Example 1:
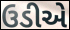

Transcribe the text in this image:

ઉડીએ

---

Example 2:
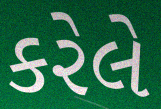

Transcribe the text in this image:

કરેલે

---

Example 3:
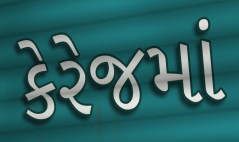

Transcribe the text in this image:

કેરેજમાં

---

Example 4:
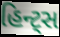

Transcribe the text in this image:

હિન્ટ્સ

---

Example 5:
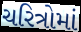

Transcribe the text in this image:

ચરિત્રોમાં